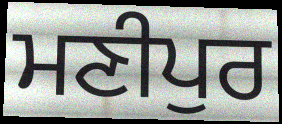
ਮਣੀਪੁਰ